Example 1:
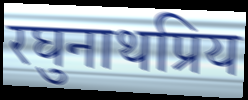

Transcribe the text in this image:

रघुनाथप्रिय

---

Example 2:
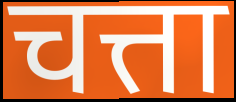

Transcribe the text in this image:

चत्ता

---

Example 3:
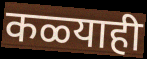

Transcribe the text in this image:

कळ्याही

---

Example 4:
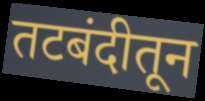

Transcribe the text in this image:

तटबंदीतून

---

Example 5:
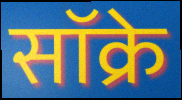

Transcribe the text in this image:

सॉक्रे